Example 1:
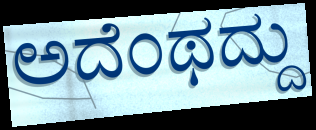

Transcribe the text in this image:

ಅದೆಂಥದ್ದು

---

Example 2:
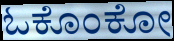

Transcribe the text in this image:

ಓಕೊಂಕೋ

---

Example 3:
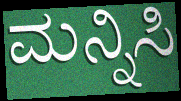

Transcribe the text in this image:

ಮನ್ನಿಸಿ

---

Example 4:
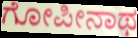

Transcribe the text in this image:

ಗೋಪೀನಾಥ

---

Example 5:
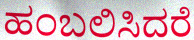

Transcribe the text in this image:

ಹಂಬಲಿಸಿದರೆ